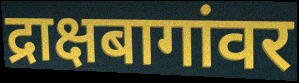
द्राक्षबागांवर